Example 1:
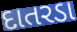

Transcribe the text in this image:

દાતરડા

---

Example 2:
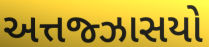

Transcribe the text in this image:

અત્તજ્ઝાસયો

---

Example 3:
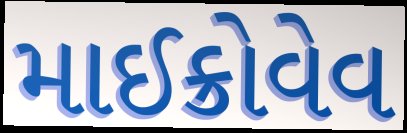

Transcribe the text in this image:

માઈક્રોવેવ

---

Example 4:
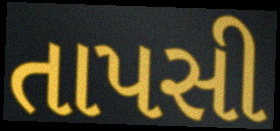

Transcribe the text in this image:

તાપસી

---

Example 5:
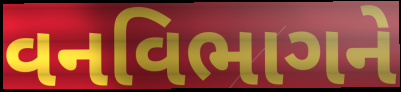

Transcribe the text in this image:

વનવિભાગને